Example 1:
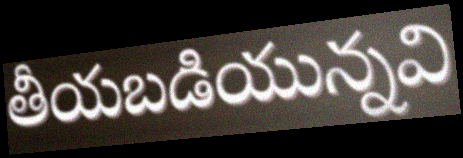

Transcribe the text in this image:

తీయబడియున్నవి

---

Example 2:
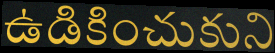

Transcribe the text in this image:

ఉడికించుకుని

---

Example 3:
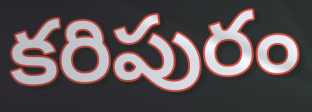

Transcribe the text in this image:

కరిపురం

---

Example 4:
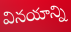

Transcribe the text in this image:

వినయాన్ని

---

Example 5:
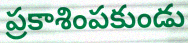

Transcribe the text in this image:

ప్రకాశింపకుండు